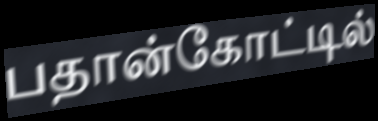
பதான்கோட்டில்